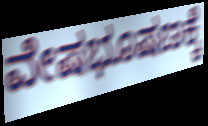
ವೇಷಭೂಷಣಕ್ಕೆ